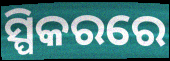
ସ୍ପିକରରେ